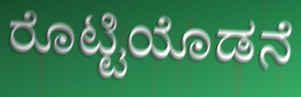
ರೊಟ್ಟಿಯೊಡನೆ